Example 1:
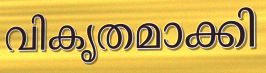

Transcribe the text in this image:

വികൃതമാക്കി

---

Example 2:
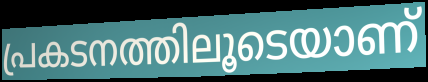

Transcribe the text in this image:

പ്രകടനത്തിലൂടെയാണ്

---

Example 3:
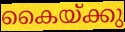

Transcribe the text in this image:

കൈയ്ക്കു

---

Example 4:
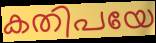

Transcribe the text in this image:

കതിപയേ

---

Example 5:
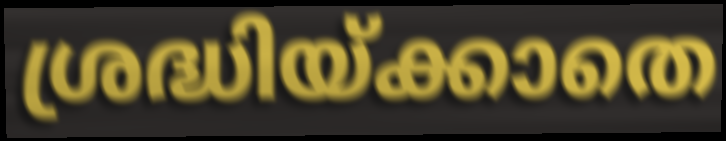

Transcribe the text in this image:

ശ്രദ്ധിയ്ക്കാതെ